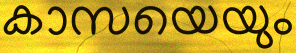
കാസയെയും